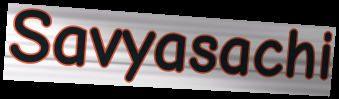
Savyasachi